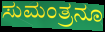
ಸುಮಂತ್ರನೂ